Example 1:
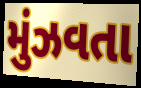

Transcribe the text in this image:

મુંઝવતા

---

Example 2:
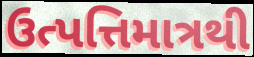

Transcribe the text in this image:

ઉત્પત્તિમાત્રથી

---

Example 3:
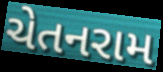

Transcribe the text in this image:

ચેતનરામ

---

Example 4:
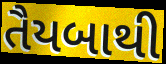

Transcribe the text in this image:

તૈયબાથી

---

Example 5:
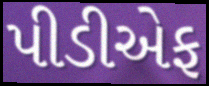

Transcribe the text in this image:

પીડીએફ